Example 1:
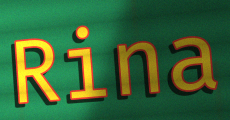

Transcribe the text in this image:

Rina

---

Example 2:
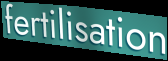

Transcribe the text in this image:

fertilisation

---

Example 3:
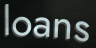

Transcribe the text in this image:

loans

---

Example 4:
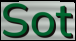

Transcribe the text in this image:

Sot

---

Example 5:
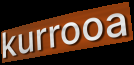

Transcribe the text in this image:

kurrooa